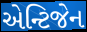
એન્ટિજેન